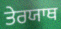
ਤੇਰਯਾਥ